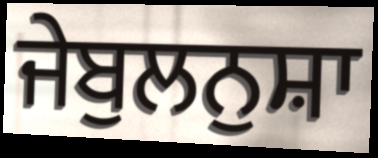
ਜੇਬੁਲਨੁਸ਼ਾ